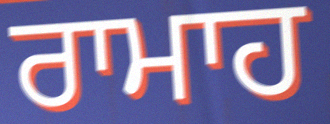
ਰਾਮਾਹ